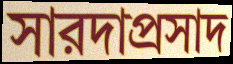
সারদাপ্রসাদ